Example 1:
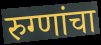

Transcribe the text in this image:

रुग्णांचा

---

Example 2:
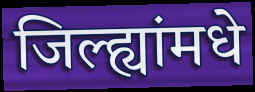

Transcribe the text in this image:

जिल्ह्यांमधे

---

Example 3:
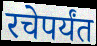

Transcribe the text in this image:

रचेपर्यंत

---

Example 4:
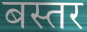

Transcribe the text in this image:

बस्तर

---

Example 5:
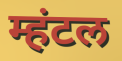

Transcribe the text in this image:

म्हंटल